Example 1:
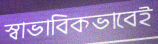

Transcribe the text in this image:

স্বাভাবিকভাবেই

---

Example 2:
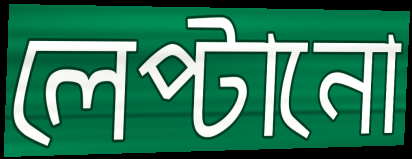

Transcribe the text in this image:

লেপ্টানো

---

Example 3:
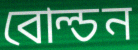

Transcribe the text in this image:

বোল্ডন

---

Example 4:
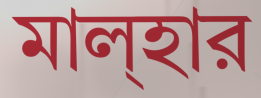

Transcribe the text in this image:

মাল্হার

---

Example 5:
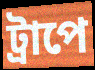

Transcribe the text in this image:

ট্রাপে